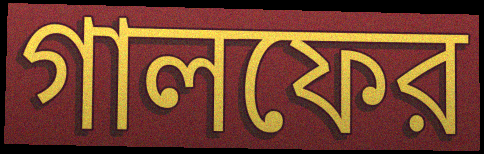
গালফের